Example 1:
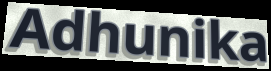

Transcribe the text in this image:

Adhunika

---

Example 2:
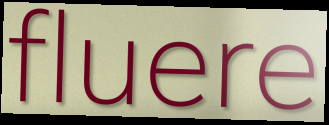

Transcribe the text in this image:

fluere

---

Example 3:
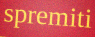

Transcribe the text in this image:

spremiti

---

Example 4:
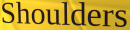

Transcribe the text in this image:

Shoulders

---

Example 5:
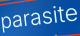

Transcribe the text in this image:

parasite